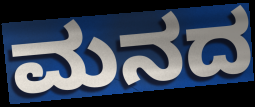
ಮನದ